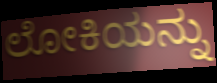
ಲೋಕಿಯನ್ನು